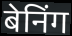
बेनिंग